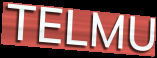
TELMU